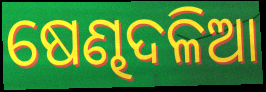
ଷେଣ୍ଢଦଳିଆ